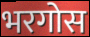
भरगोस